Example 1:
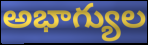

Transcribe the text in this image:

అభాగ్యుల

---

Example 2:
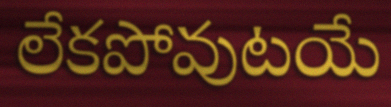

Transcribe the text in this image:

లేకపోవుటయే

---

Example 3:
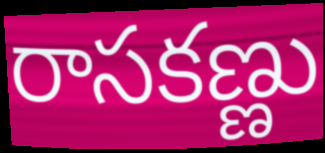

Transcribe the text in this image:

రాసకణ్ణు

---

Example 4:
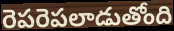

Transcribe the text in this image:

రెపరెపలాడుతోంది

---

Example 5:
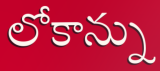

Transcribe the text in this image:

లోకాన్ను